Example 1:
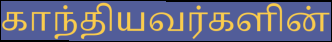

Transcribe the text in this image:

காந்தியவர்களின்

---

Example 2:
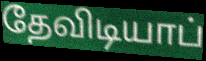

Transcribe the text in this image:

தேவிடியாப்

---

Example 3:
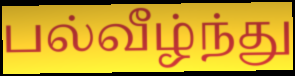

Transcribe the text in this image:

பல்வீழ்ந்து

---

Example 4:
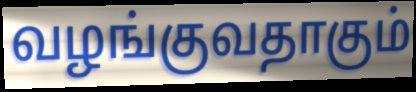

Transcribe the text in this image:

வழங்குவதாகும்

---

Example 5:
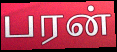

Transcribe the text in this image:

பரன்